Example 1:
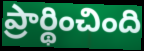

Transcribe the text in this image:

ప్రార్థించింది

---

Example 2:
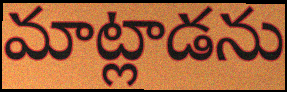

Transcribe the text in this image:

మాట్లాడను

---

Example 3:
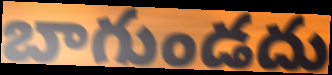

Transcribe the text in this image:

బాగుండదు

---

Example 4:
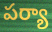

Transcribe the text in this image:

పర్యా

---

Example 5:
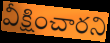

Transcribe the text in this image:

వీక్షించారని